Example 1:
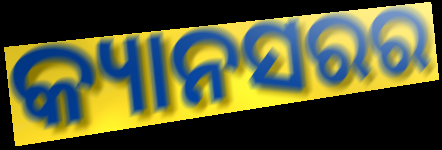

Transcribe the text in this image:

କ୍ୟାନସରର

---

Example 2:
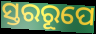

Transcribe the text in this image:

ସ୍ତରରୂପେ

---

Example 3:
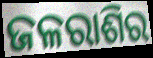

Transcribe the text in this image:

ଜଳରାଶିର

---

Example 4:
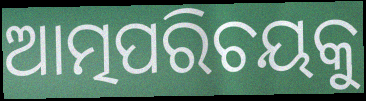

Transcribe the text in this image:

ଆତ୍ମପରିଚୟକୁ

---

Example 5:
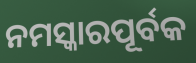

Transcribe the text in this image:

ନମସ୍କାରପୂର୍ବକ